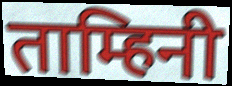
ताम्हिनी